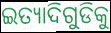
ଇତ୍ୟାଦିଗୁଡିକୁ